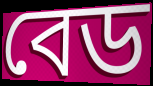
বেড